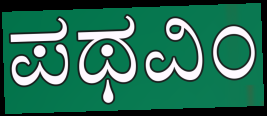
ಪಥವಿಂ